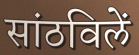
सांठविलें